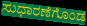
ಸುಧಾರಣೆಗೊಂಡ